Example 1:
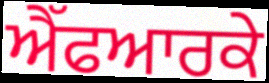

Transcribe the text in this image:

ਐੱਫਆਰਕੇ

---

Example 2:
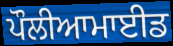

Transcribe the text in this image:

ਪੌਲੀਆਮਾਈਡ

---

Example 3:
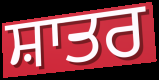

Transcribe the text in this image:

ਸ਼ਾਤਰ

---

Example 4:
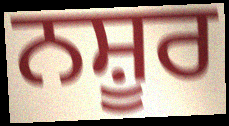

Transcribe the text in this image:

ਨਸ਼ੂਰ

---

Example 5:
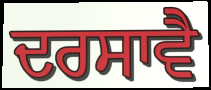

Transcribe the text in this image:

ਦਰਸਾਵੈ